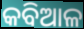
କବିଆଳ